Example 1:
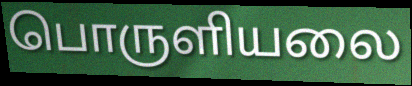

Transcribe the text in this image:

பொருளியலை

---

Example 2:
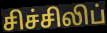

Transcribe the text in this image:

சிச்சிலிப்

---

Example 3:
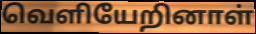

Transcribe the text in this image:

வெளியேறினாள்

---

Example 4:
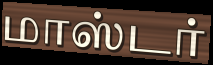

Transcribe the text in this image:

மாஸ்டர்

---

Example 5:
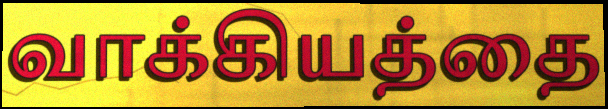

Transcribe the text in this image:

வாக்கியத்தை